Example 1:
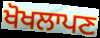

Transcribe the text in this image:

ਖੋਖਲਾਪਣ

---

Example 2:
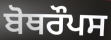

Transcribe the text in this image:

ਬੋਥਰੌਪਸ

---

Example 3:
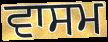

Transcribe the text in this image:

ਵਾਸਮ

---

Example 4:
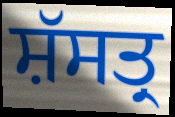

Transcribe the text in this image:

ਸ਼ੱਸਤ੍ਰ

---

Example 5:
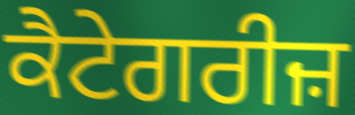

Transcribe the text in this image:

ਕੈਟੇਗਰੀਜ਼